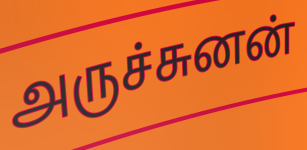
அருச்சுனன்